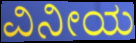
ವಿನೀಯ